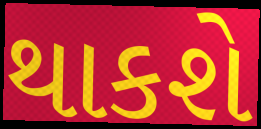
થાકશે